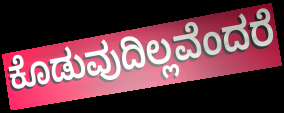
ಕೊಡುವುದಿಲ್ಲವೆಂದರೆ